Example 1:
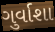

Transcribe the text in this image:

ગુર્વાશા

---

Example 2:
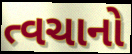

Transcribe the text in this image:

ત્વચાનો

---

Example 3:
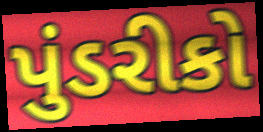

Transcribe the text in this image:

પુંડરીકો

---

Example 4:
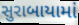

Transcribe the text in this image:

સુરાબાયામાં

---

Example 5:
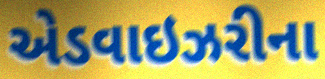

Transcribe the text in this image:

એડવાઇઝરીના